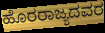
ಹೊರರಾಜ್ಯದವರ